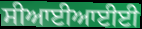
ਸੀਆਈਆਈਈ